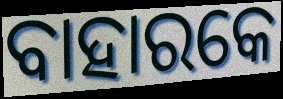
ବାହାରକେ